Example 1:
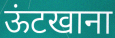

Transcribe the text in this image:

ऊंटखाना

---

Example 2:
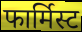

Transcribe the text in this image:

फार्मिस्ट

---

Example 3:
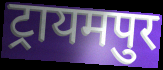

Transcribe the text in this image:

ट्रायमपुर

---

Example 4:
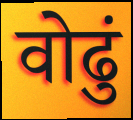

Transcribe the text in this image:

वोढुं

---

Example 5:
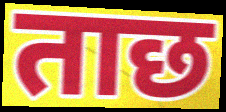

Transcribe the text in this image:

ताछ